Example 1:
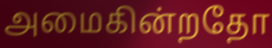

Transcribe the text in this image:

அமைகின்றதோ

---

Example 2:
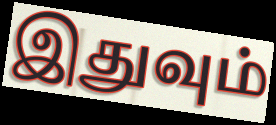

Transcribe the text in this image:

இதுவும்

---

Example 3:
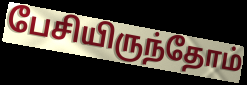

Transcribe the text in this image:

பேசியிருந்தோம்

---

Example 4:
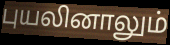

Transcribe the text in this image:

புயலினாலும்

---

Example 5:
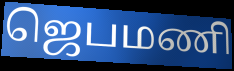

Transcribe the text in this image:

ஜெபமணி